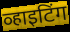
व्हाइटिंग